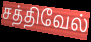
சத்திவேல்